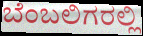
ಬೆಂಬಲಿಗರಲ್ಲಿ